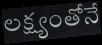
లక్ష్యంతోనే